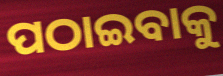
ପଠାଇବାକୁ